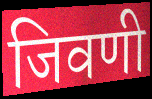
जिवणी